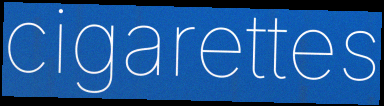
cigarettes